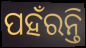
ପହଁରନ୍ତି